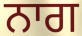
ਨਾਗ